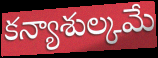
కన్యాశుల్కమే